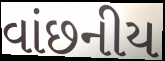
વાંછનીય